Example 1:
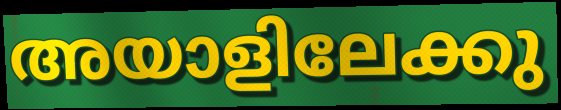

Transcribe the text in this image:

അയാളിലേക്കു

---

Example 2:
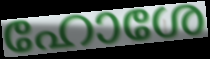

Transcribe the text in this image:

ഹോശേ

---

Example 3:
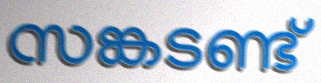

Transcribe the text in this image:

സങ്കടണ്ട്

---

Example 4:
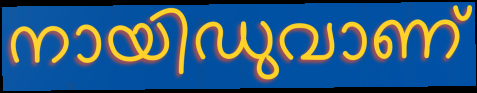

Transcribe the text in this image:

നായിഡുവാണ്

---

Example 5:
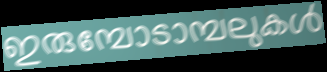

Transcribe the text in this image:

ഇരുമ്പോടാമ്പലുകൾ